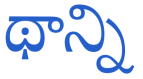
థాన్ని